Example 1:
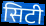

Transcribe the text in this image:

सिटी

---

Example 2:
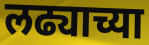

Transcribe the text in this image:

लढ्याच्या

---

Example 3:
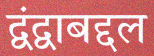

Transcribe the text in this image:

द्वंद्वाबद्दल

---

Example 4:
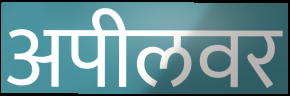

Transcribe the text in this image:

अपीलवर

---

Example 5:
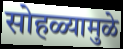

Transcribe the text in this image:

सोहळ्यामुळे